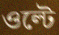
ওল্টে